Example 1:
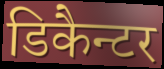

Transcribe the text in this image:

डिकैन्टर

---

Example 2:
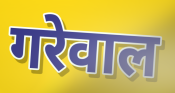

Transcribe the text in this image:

गरेवाल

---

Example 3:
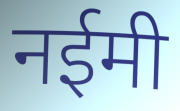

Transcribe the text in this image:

नईमी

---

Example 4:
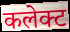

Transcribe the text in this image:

कलेक्ट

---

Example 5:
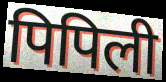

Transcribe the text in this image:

पिपिली